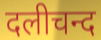
दलीचन्द